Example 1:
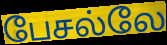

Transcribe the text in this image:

பேசல்லே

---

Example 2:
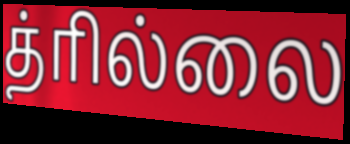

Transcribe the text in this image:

த்ரில்லை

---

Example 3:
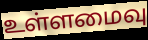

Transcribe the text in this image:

உள்ளமைவு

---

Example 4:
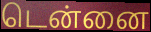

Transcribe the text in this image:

டென்னை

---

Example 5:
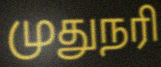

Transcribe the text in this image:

முதுநரி